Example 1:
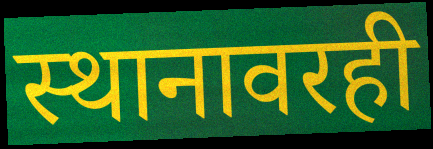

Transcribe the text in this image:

स्थानावरही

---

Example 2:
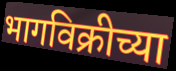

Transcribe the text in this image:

भागविक्रीच्या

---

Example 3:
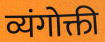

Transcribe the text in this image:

व्यंगोक्ती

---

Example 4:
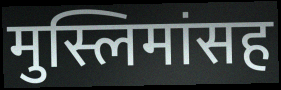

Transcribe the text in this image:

मुस्लिमांसह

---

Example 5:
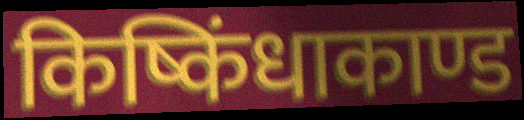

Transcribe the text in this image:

किष्किंधाकाण्ड